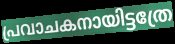
പ്രവാചകനായിട്ടത്രേ